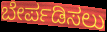
ಬೇರ್ಪಡಿಸಲು